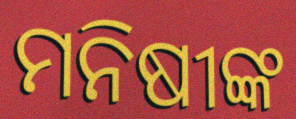
ମନିଷୀଙ୍କ